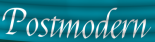
Postmodern